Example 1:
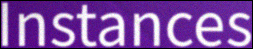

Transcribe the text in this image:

Instances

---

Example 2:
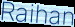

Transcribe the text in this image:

Raihan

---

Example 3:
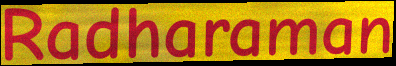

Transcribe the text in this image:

Radharaman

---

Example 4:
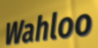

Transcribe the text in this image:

Wahloo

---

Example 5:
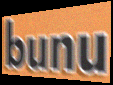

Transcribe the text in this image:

bunu